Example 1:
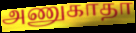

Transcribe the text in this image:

அணுகாதா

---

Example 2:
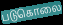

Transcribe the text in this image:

படுகொலை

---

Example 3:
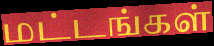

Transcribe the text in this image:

மட்டங்கள்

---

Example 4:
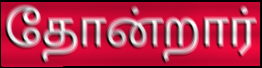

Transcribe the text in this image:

தோன்றார்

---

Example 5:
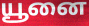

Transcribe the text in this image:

யூனை